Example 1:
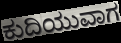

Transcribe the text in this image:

ಕುದಿಯುವಾಗ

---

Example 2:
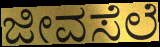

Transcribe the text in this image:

ಜೀವಸೆಲೆ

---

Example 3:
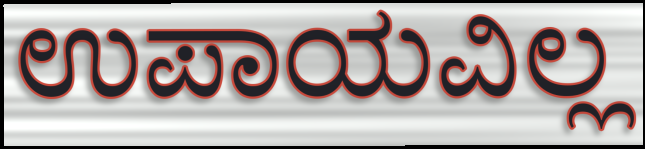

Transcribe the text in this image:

ಉಪಾಯವಿಲ್ಲ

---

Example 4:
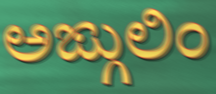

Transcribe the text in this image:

ಅಙ್ಗುಲಿಂ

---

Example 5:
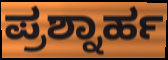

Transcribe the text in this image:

ಪ್ರಶ್ನಾರ್ಹ